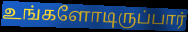
உங்களோடிருப்பார்